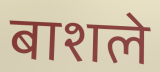
बाशले